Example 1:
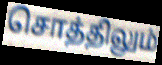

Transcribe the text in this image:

சொத்திலும்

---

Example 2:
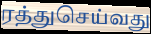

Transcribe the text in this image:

ரத்துசெய்வது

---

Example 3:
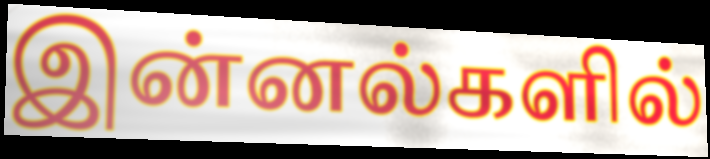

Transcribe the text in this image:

இன்னல்களில்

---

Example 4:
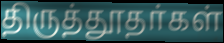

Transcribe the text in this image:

திருத்தூதர்கள்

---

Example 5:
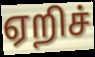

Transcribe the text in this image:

ஏறிச்